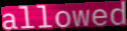
allowed